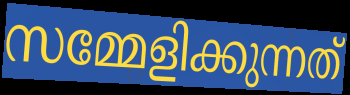
സമ്മേളിക്കുന്നത്